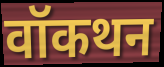
वॉकथन